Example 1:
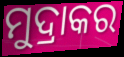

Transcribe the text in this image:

ମୁଦ୍ରାକର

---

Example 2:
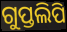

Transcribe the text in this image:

ଗୁପ୍ତଲିପି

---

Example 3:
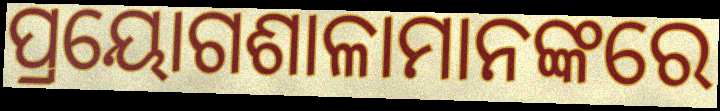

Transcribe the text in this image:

ପ୍ରୟୋଗଶାଳାମାନଙ୍କରେ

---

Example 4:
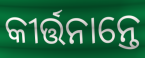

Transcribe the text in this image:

କୀର୍ତ୍ତନାନ୍ତେ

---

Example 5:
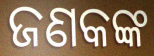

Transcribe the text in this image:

ଜଣକଙ୍କ